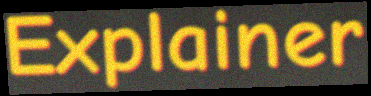
Explainer